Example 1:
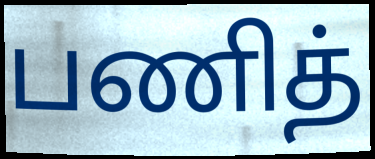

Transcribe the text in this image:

பணித்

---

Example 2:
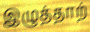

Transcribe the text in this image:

இழுத்தாற்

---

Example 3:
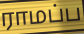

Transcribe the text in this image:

ராமப்ப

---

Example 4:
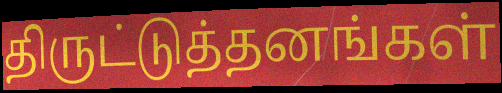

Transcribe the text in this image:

திருட்டுத்தனங்கள்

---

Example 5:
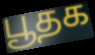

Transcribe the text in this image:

பூதக